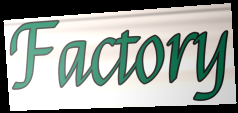
Factory